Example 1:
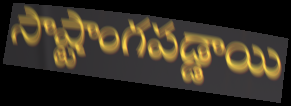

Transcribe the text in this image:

సాష్టాంగపడ్డాయి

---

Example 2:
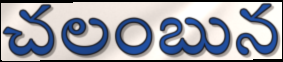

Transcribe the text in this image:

చలంబున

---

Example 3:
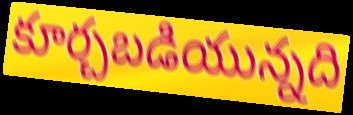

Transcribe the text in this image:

కూర్చబడియున్నది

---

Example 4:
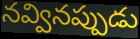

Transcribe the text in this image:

నవ్వినప్పుడు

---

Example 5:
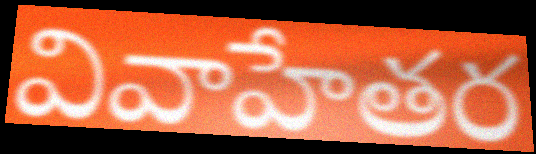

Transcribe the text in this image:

వివాహేతర